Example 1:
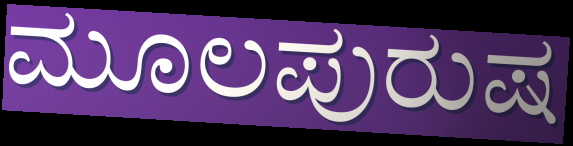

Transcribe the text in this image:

ಮೂಲಪುರುಷ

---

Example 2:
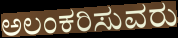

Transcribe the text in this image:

ಅಲಂಕರಿಸುವರು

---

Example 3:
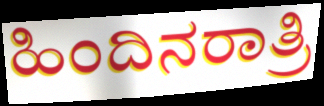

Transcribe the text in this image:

ಹಿಂದಿನರಾತ್ರಿ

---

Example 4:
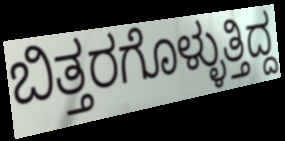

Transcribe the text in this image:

ಬಿತ್ತರಗೊಳ್ಳುತ್ತಿದ್ದ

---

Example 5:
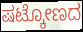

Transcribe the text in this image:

ಷಟ್ಕೋಣದ